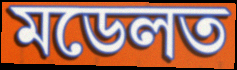
মডেলত